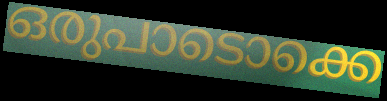
ഒരുപാടൊക്കെ